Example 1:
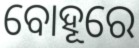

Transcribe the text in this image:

ବୋହୂରେ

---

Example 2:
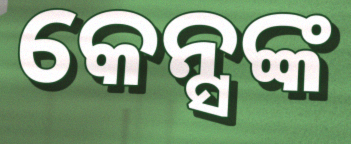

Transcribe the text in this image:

କେନ୍ସଙ୍କ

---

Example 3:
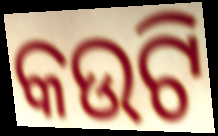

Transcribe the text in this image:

କଉଟି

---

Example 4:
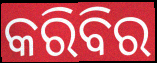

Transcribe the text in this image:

କରିବିର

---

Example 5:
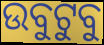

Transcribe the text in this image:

ଉବୁଟୁବୁ